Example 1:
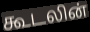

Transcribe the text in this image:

கூடலின்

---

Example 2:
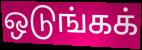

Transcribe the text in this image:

ஒடுங்கக்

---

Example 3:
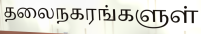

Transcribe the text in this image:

தலைநகரங்களுள்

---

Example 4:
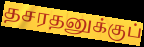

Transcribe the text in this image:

தசரதனுக்குப்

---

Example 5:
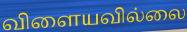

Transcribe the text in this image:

விளையவில்லை